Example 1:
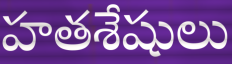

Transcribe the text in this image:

హతశేషులు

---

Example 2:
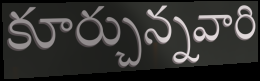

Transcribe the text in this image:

కూర్చున్నవారి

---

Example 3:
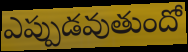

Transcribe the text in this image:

ఎప్పుడవుతుందో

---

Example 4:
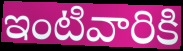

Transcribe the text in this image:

ఇంటివారికి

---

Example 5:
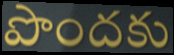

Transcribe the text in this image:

పొందకు